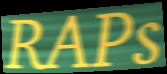
RAPs